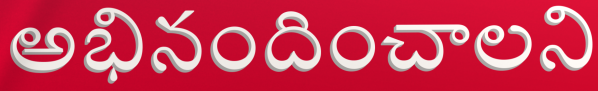
అభినందించాలని